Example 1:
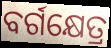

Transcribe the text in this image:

ବର୍ଗକ୍ଷେତ୍ର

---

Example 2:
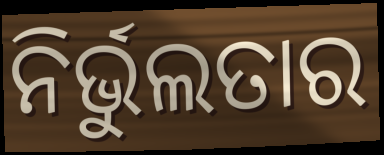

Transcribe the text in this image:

ନିର୍ଭୁଲତାର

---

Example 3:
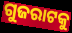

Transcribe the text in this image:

ଗୁଜରାଟକୁ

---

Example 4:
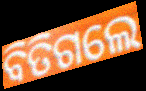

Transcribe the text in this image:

ବିତିଗଲେ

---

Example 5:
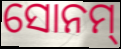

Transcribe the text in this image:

ସୋନମ୍